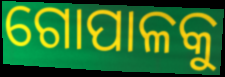
ଗୋପାଳକୁ